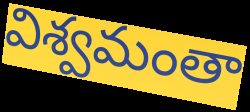
విశ్వమంతా